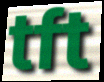
tft